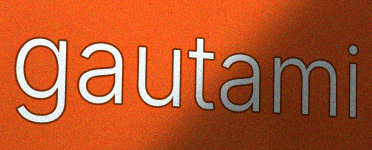
gautami